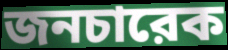
জনচারেক